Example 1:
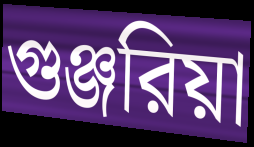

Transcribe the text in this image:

গুঞ্জরিয়া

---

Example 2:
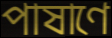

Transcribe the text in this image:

পাষাণে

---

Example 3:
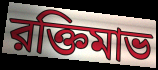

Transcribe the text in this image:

রক্তিমাভ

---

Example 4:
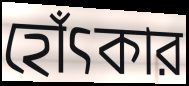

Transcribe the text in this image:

হোঁৎকার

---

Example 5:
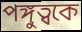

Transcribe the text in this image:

পঙ্গুত্বকে